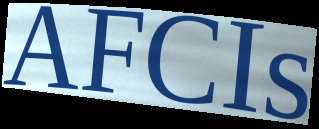
AFCIs